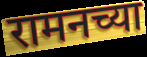
रामनच्या